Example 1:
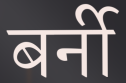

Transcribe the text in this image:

बर्नी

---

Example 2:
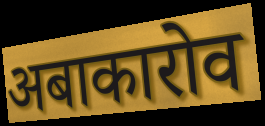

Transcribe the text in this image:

अबाकारोव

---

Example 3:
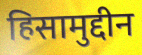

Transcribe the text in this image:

हिसामुद्दीन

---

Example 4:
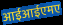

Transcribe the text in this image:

आईआईएमए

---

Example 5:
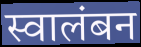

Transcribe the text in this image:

स्वालंबन